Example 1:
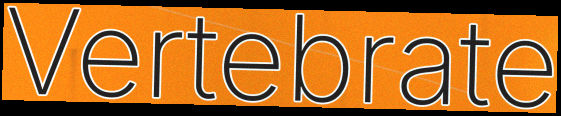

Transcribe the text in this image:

Vertebrate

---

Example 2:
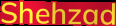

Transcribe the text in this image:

Shehzad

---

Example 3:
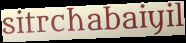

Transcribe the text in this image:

sitrchabaiyil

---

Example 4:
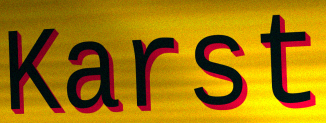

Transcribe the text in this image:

Karst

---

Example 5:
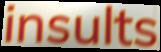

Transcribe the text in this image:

insults